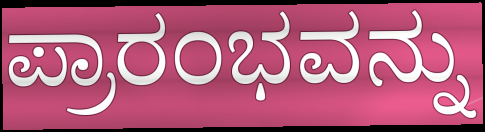
ಪ್ರಾರಂಭವನ್ನು